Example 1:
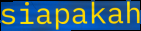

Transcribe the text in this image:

siapakah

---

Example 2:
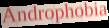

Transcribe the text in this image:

Androphobia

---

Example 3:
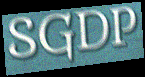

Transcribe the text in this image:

SGDP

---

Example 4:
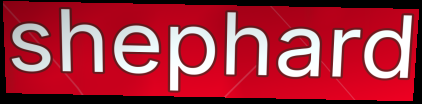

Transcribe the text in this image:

shephard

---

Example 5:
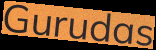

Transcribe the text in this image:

Gurudas